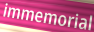
immemorial